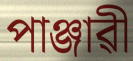
পাঞ্জাৱী